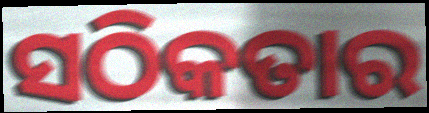
ସଠିକତାର